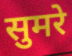
सुमरे